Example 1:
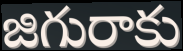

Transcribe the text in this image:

జిగురాకు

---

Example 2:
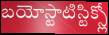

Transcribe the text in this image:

బయోస్టాటిస్టిక్స్లో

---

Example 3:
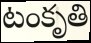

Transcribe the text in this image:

టంకృతి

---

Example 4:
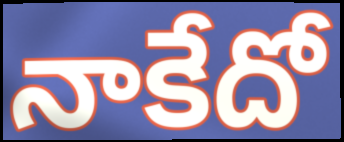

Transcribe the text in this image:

నాకేదో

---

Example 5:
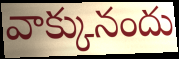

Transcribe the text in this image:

వాక్కునందు